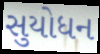
સુયોધન